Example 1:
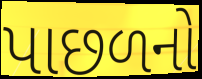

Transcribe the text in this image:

પાછળનો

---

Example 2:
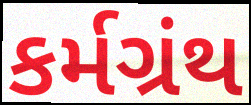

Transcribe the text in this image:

કર્મગ્રંથ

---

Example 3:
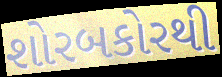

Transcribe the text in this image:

શોરબકોરથી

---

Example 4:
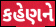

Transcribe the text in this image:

કહેણને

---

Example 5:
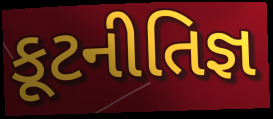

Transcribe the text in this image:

કૂટનીતિજ્ઞ